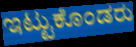
ಇಟ್ಟುಕೊಂಡರು